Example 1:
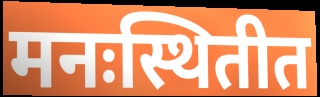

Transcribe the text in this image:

मनःस्थितीत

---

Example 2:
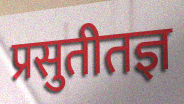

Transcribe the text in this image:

प्रसुतीतज्ञ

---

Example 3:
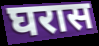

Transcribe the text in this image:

घरास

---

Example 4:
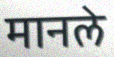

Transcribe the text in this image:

मानले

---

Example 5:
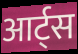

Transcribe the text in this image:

आर्ट्स